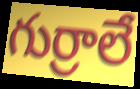
గుర్రాలే